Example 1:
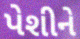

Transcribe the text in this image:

પેશીને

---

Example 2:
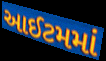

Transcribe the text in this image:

આઈટમમાં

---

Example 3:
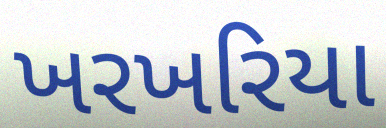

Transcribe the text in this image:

ખરખરિયા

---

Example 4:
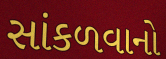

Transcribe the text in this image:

સાંકળવાનો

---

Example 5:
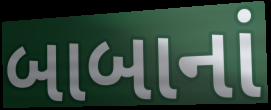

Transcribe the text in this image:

બાબાનાં